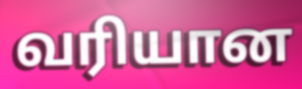
வரியான